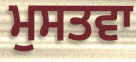
ਮੁਸਤਵਾ